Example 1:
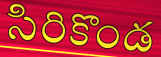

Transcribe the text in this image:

సిరికొండ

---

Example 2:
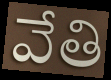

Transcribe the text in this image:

వేతి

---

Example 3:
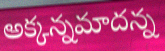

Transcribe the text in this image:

అక్కన్నమాదన్న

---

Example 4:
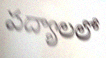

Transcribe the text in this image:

పద్యాలలో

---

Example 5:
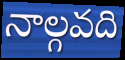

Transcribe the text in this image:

నాల్గవది